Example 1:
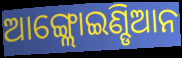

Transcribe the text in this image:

ଆଙ୍ଗ୍ଲୋଇଣ୍ଡିଆନ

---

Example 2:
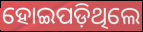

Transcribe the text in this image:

ହୋଇପଡ଼ିଥିଲେ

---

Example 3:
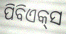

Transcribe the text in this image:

ପିବିଏକ୍‌ସ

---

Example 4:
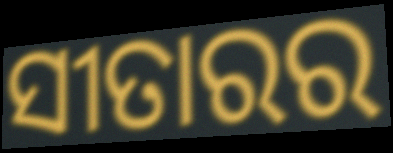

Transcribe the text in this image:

ସୀତାରର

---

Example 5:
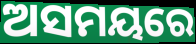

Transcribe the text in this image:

ଅସମୟରେ